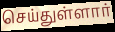
செய்துள்ளார்